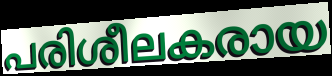
പരിശീലകരായ